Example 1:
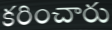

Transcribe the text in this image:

కరించారు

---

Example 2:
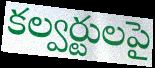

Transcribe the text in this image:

కల్వర్టులపై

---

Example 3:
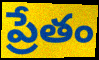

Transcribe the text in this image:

ప్రేతం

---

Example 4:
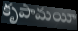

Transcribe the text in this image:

కృపామయీ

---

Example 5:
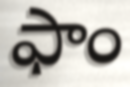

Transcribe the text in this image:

ఫాం